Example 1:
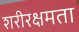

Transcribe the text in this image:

शरीरक्षमता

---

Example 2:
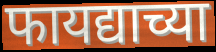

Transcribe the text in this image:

फायद्याच्या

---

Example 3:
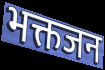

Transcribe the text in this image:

भक्तजन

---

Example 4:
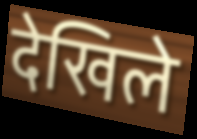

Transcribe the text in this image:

देखिले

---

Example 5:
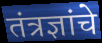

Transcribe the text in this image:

तंत्रज्ञांचे